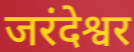
जरंदेश्वर